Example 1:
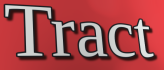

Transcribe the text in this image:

Tract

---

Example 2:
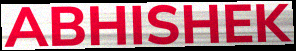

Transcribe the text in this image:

ABHISHEK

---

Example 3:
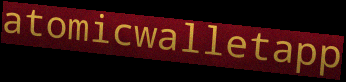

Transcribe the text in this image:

atomicwalletapp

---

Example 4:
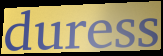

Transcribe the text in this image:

duress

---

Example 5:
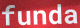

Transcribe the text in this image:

funda